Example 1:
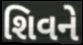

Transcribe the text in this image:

શિવને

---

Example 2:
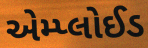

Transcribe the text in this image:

એમ્પ્લોઈડ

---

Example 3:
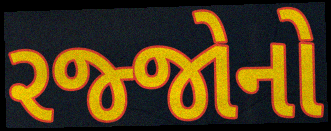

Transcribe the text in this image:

રજ્જોનો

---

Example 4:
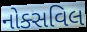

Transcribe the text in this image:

નોક્સવિલ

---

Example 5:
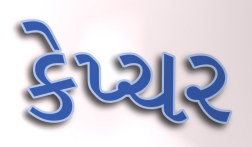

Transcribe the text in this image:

કેપ્ચર